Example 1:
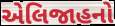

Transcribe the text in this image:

એલિજાહનો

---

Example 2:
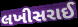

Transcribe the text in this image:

લખીસરાઈ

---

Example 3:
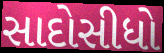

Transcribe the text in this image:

સાદોસીધો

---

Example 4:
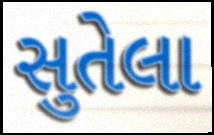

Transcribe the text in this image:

સુતેલા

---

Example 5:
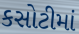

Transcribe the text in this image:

કસોટીમાં